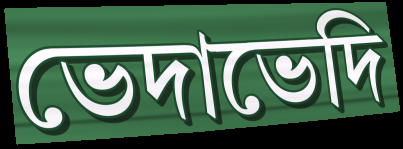
ভেদাভেদি